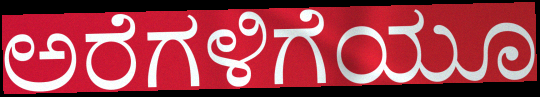
ಅರೆಗಳಿಗೆಯೂ